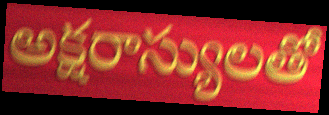
అక్షరాస్యులతో